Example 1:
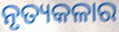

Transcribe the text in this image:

ନୃତ୍ୟକଳାର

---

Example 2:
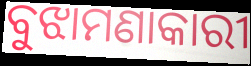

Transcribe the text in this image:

ବୁଝାମଣାକାରୀ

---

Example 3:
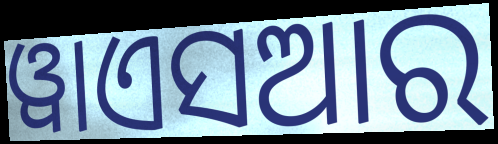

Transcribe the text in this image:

ୱାଏସଆର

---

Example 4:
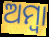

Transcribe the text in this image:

ଅମ୍ବା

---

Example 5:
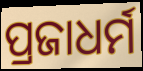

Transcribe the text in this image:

ପ୍ରଜାଧର୍ମ